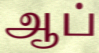
ஆப்